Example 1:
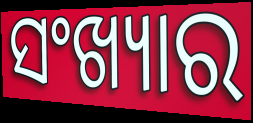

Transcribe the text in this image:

ସଂଖ୍ୟାର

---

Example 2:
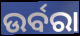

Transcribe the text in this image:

ଉର୍ବରା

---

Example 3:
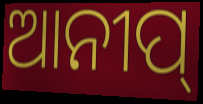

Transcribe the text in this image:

ଆନୀପ୍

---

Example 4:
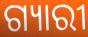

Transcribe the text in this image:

ଗ୍ୟାରୀ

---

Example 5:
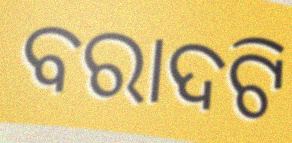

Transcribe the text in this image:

ବରାଦଟି